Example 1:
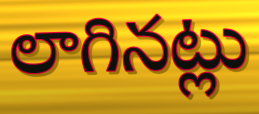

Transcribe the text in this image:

లాగినట్లు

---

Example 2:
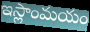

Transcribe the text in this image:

ఇస్లాంమయం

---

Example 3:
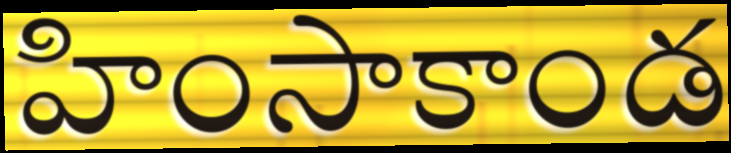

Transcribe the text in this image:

హింసాకాండ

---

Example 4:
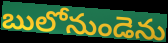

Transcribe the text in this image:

బులోనుండెను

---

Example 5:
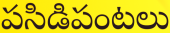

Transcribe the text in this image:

పసిడిపంటలు